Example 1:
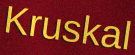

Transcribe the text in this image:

Kruskal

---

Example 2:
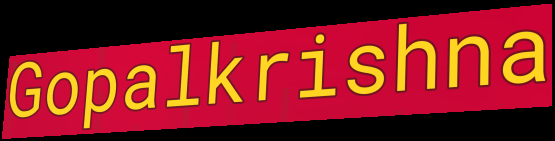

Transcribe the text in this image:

Gopalkrishna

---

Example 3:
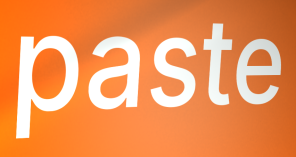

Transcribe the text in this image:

paste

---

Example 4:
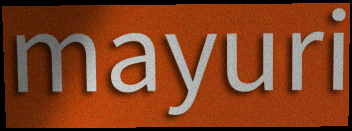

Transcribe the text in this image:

mayuri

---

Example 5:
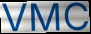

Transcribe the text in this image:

VMC